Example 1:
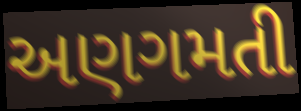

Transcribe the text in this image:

અણગમતી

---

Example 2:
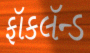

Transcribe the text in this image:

ફૉકલૅન્ડ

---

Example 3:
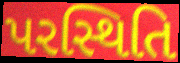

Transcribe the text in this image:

પરસ્થિતિ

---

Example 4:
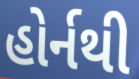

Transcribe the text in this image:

હોર્નથી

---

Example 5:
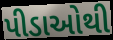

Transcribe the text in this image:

પીડાઓથી